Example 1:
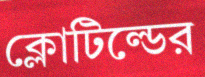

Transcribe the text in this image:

ক্লোটিল্ডের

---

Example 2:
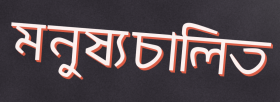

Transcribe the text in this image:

মনুষ্যচালিত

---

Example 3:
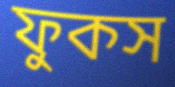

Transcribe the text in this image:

ফুকস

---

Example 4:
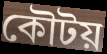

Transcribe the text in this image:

কৌটয়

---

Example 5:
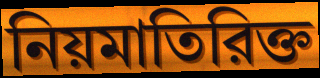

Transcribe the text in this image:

নিয়মাতিরিক্ত